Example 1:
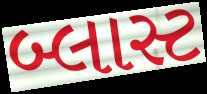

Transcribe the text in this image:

બ્લાસ્ટ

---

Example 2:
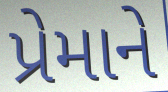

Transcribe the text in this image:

પ્રેમાને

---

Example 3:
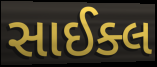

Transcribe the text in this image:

સાઈક્લ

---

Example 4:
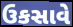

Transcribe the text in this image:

ઉકસાવે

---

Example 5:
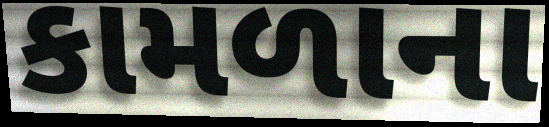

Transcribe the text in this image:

કામળાના